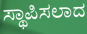
ಸ್ಥಾಪಿಸಲಾದ